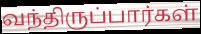
வந்திருப்பார்கள்